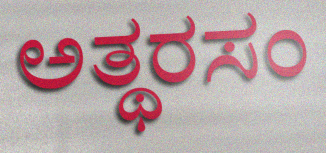
ಅತ್ಥರಸಂ